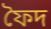
ফৈদ